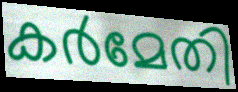
കർമേതി